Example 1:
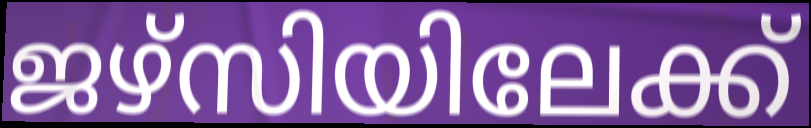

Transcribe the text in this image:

ജഴ്സിയിലേക്ക്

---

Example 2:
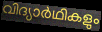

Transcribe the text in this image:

വിദ്യാർഥികളും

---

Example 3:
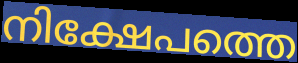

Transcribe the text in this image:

നിക്ഷേപത്തെ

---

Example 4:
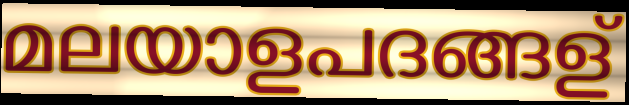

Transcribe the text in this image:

മലയാളപദങ്ങള്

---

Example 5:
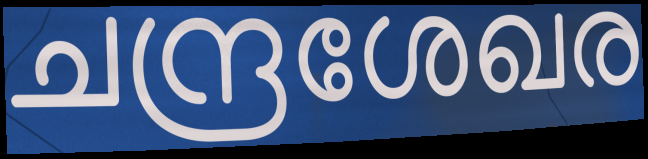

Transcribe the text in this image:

ചന്ദ്രശേഖര